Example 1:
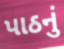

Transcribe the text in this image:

પાઠનું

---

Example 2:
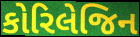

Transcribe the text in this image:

કોરિલેજિન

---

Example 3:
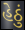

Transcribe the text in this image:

હેઠું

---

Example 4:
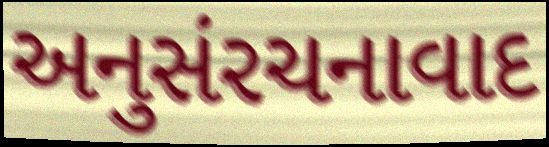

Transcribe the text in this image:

અનુસંરચનાવાદ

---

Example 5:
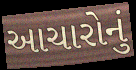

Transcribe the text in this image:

આચારોનું